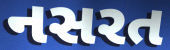
નસરત